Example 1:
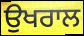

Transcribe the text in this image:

ਉਖਰਾਲ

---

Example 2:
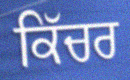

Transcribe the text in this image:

ਕਿੱਚਰ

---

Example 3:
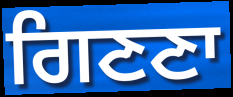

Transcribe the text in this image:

ਗਿਣਣਾ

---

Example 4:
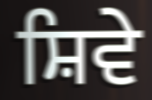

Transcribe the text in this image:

ਸ਼ਿਵੇ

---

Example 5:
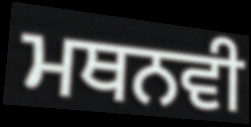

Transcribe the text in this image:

ਮਥਨਵੀ